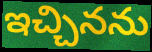
ఇచ్చినను